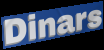
Dinars